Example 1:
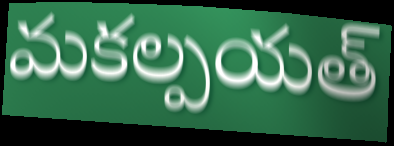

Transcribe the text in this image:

మకల్పయత్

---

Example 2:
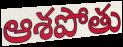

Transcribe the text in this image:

ఆశపోతు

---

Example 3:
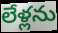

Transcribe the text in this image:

లేళ్లను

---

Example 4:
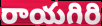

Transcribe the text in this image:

రాయగిరి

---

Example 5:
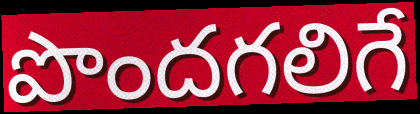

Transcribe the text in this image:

పొందగలిగే